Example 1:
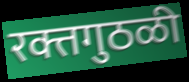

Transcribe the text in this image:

रक्तगुठळी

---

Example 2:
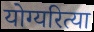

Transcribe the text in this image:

योग्यरित्या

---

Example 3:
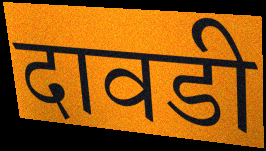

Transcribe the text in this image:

दावडी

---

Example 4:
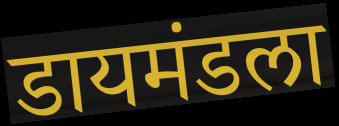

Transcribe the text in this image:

डायमंडला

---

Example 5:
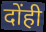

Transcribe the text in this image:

दोंही